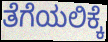
ತೆಗೆಯಲಿಕ್ಕೆ